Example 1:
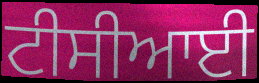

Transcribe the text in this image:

ਟੀਸੀਆਈ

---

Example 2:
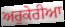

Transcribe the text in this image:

ਅਰੁਕੇਰੀਆ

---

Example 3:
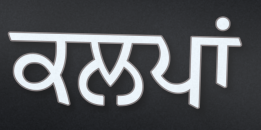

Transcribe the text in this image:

ਕਲਪਾਂ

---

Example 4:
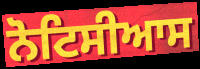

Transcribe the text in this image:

ਨੋਟਿਸੀਆਸ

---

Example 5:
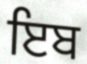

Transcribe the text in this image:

ਇਬ